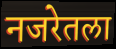
नजरेतला